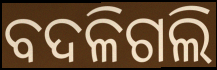
ବଦଳିଗଲି